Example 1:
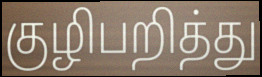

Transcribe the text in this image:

குழிபறித்து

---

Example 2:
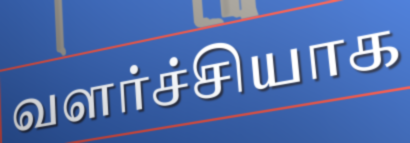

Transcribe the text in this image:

வளர்ச்சியாக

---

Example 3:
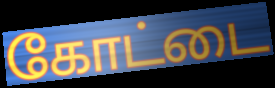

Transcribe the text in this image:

கோட்டை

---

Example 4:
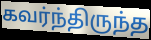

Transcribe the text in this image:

கவர்ந்திருந்த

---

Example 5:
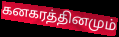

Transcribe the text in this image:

கனகரத்தினமும்